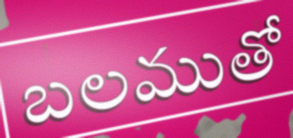
బలముతో